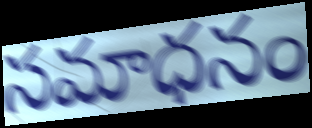
సమాధనం